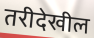
तरीदेखील